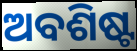
ଅବଶିଷ୍ଟ